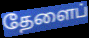
தேளைப்